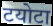
टयोटा